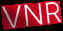
VNR